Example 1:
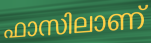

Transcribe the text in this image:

ഫാസിലാണ്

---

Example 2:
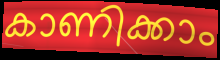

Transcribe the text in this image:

കാണിക്കാം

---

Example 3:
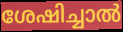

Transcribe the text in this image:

ശേഷിച്ചാൽ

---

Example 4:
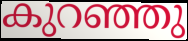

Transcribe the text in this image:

കുറഞ്ഞു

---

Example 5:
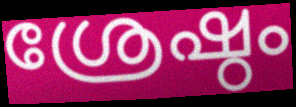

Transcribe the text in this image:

ശ്രേഷ്ഠം